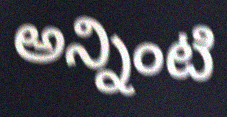
అన్నింటి